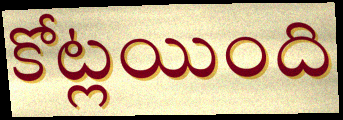
కోట్లయింది